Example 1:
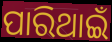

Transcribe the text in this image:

ପାରିଥାଇଁ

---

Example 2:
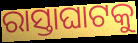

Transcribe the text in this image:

ରାସ୍ତାଘାଟକୁ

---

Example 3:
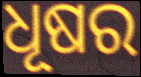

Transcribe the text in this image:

ଧୂଷର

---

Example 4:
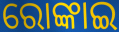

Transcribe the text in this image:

ରୋଙ୍କାଇ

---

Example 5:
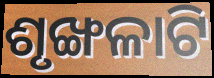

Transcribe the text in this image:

ଶୃଙ୍ଖଳାଟି